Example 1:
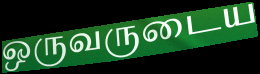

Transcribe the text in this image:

ஒருவருடைய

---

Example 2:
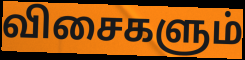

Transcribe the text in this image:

விசைகளும்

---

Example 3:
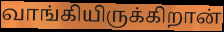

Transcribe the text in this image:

வாங்கியிருக்கிறான்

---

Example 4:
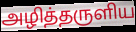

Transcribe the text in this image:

அழித்தருளிய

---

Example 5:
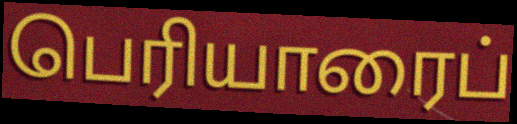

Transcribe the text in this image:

பெரியாரைப்